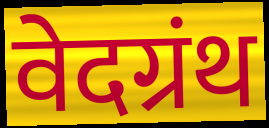
वेदग्रंथ